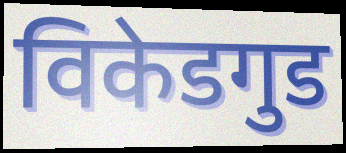
विकेडगुड